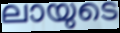
ലായുടെ